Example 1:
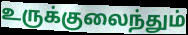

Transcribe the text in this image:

உருக்குலைந்தும்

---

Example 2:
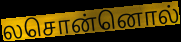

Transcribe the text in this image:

லசொன்னொல்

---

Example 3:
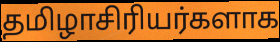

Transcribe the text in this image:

தமிழாசிரியர்களாக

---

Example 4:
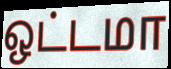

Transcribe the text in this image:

ஒட்டமா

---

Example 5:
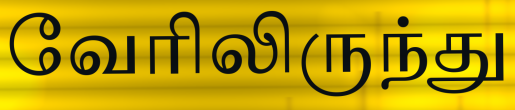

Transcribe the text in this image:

வேரிலிருந்து